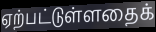
ஏற்பட்டுள்ளதைக்